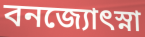
বনজ্যোৎস্না